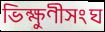
ভিক্ষুণীসংঘ